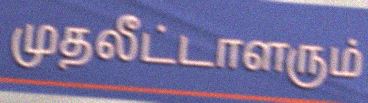
முதலீட்டாளரும்